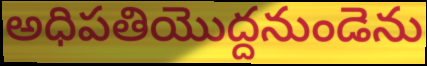
అధిపతియొద్దనుండెను